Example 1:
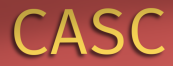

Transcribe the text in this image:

CASC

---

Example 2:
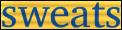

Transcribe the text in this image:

sweats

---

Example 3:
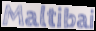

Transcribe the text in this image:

Maltibai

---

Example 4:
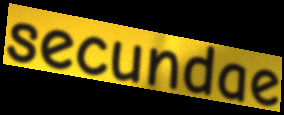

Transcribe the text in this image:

secundae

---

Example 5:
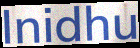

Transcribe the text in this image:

Inidhu